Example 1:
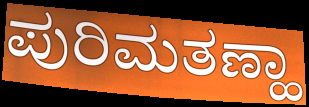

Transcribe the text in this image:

ಪುರಿಮತಣ್ಹಾ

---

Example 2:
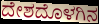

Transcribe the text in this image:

ದೇಶದೊಳಗಿನ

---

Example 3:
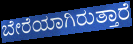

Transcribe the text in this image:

ಬೇರೆಯಾಗಿರುತ್ತಾರೆ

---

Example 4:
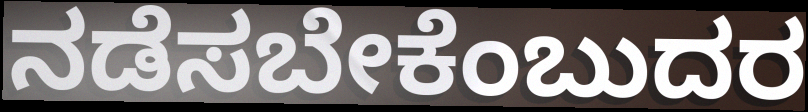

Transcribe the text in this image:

ನಡೆಸಬೇಕೆಂಬುದರ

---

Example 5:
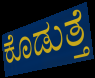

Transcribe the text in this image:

ಕೊಡುತ್ತೆ